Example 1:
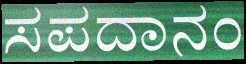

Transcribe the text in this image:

ಸಪದಾನಂ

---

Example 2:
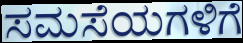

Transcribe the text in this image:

ಸಮಸೆಯಗಳಿಗೆ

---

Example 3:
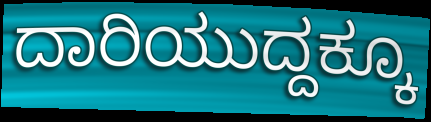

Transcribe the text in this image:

ದಾರಿಯುದ್ದಕ್ಕೂ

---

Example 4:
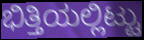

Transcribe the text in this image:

ಭಿತ್ತಿಯಲ್ಲಿಟ್ಟು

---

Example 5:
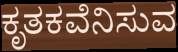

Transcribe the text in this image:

ಕೃತಕವೆನಿಸುವ